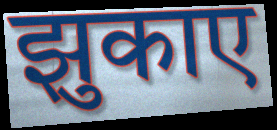
झुकाए